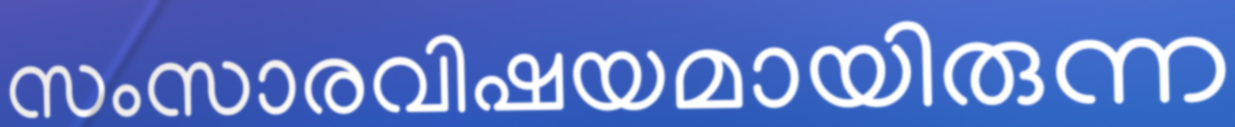
സംസാരവിഷയമായിരുന്ന